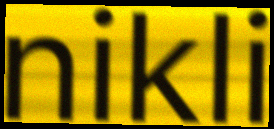
nikli